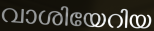
വാശിയേറിയ